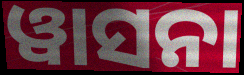
ୱାସନା